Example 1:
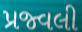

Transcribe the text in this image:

પ્રજ્વલી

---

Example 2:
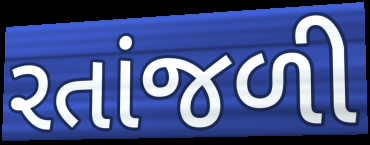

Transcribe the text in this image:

રતાંજળી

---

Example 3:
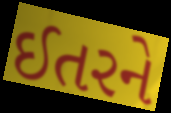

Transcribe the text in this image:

ઈતરને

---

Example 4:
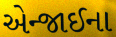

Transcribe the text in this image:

એન્જાઈના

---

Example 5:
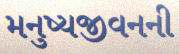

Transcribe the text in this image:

મનુષ્યજીવનની